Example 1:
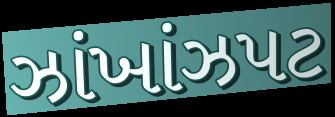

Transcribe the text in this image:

ઝાંખાંઝપટ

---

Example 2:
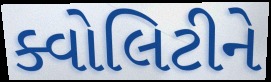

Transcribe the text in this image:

ક્વોલિટીને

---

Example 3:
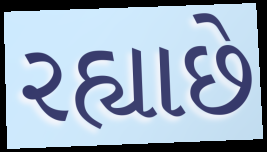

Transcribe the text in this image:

રહ્યાછે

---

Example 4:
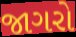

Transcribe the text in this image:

જાગરો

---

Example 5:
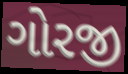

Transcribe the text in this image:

ગોરજી